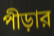
পীড়ার